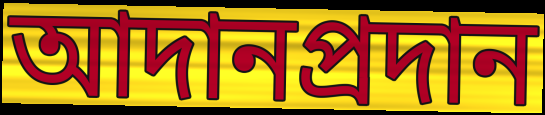
আদানপ্রদান